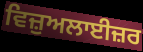
ਵਿਜ਼ੁਅਲਾਈਜ਼ਰ